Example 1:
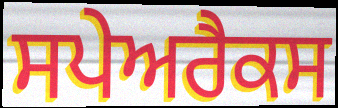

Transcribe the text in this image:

ਸਪੇਅਰੈਕਸ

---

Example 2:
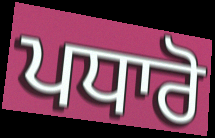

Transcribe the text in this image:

ਪਧਾਰੋ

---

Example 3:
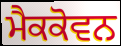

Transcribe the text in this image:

ਮੈਕਕੋਵਨ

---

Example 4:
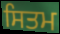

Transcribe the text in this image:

ਸਿਤਮ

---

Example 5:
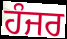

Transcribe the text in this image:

ਹੰਜਰ